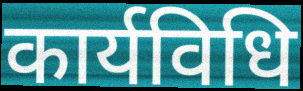
कार्यविधि